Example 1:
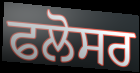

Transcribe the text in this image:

ਫਲੋਸਰ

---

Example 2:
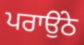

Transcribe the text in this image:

ਪਰਾਉਂਠੇ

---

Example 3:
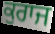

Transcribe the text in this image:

ਕੁਰਾਜ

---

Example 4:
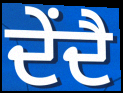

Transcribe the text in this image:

ਦੇਂਦੈ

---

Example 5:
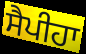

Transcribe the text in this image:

ਸੈਪੀਹਾ